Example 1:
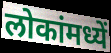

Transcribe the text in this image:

लोकांमध्यें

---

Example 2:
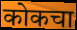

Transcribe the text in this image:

कोकचा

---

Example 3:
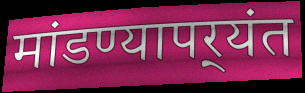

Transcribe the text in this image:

मांडण्यापर्यंत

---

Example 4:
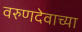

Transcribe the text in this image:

वरुणदेवाच्या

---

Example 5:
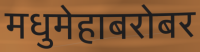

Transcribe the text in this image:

मधुमेहाबरोबर